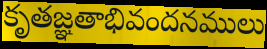
కృతజ్ఞతాభివందనములు